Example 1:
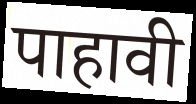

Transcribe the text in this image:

पाहावी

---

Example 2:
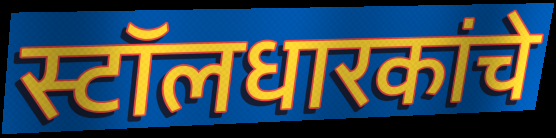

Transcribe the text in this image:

स्टॉलधारकांचे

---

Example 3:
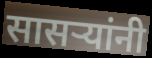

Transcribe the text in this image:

सासर्‍यांनी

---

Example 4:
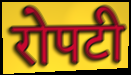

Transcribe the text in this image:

रोपटी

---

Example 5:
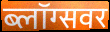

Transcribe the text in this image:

ब्लॉग्सवर